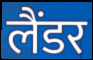
लैंडर